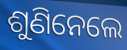
ଶୁଣିନେଲେ